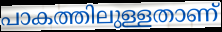
പാകത്തിലുള്ളതാണ്